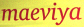
maeviya